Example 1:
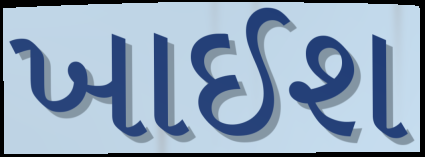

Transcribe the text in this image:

ખાઈશ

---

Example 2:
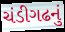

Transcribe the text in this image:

ચંડીગઢનું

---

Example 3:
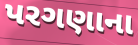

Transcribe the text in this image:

પરગણાના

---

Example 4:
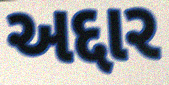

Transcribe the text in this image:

અદ્દાર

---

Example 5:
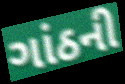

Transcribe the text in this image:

ગાંઠની